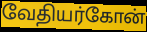
வேதியர்கோன்